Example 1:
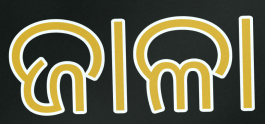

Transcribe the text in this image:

ଜାଳା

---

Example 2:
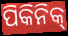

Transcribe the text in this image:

ପିକିନିକ୍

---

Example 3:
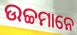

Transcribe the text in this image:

ଉଚ୍ଚମାନେ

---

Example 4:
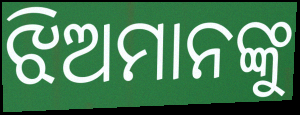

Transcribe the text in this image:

ଝିଅମାନଙ୍କୁ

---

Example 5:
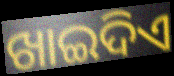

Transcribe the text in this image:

ଖାଇଦିଏ